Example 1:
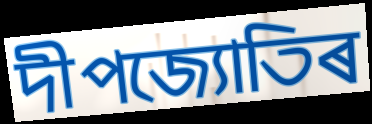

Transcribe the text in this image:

দীপজ্যোতিৰ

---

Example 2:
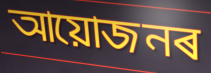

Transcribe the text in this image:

আয়োজনৰ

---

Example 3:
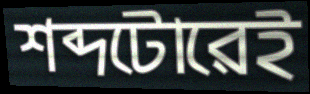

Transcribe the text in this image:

শব্দটোৱেই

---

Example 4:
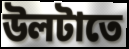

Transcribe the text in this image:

উলটাতে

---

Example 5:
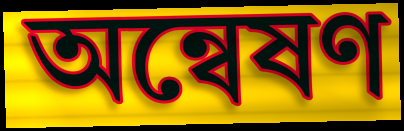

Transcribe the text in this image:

অন্বেষণ